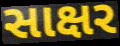
સાક્ષર